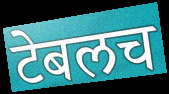
टेबलच